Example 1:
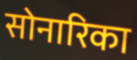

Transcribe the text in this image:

सोनारिका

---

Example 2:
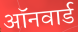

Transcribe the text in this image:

ऑनवार्ड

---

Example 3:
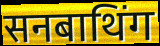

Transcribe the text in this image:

सनबाथिंग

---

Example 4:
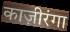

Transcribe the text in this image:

काज़ीरंगा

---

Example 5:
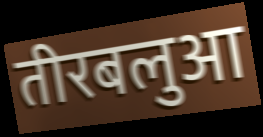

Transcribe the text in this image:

तीरबलुआ